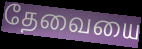
தேவையை